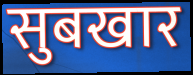
सुबखार